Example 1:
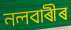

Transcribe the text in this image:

নলবাৰীৰ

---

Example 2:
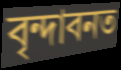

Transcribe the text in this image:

বৃন্দাবনত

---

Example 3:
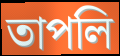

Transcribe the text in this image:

তাপলি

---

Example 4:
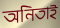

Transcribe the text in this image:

অনিতাই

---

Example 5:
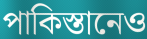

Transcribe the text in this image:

পাকিস্তানেও